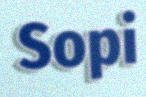
Sopi